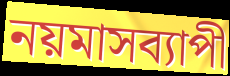
নয়মাসব্যাপী